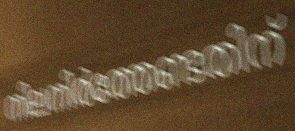
നിലനിർത്തേണ്ടതിന്